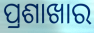
ପ୍ରଶାଖାର